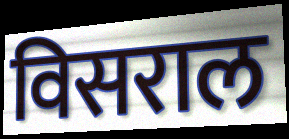
विसराल